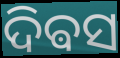
ଦିଵସ